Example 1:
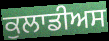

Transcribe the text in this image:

ਕੁਲਾਡੀਅਸ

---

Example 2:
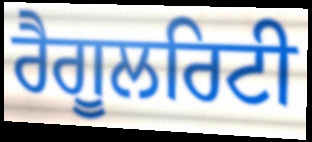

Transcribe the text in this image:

ਰੈਗੂਲਰਿਟੀ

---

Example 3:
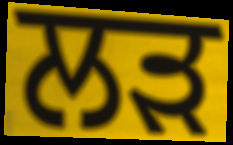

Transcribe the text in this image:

ਲੜ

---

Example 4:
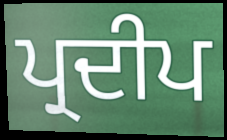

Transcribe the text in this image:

ਪ੍ਰਦੀਪ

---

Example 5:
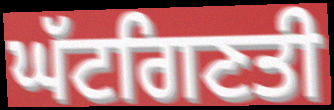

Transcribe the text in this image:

ਘੱਟਗਿਣਤੀ